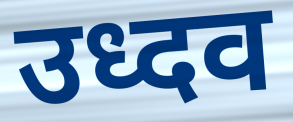
उध्दव